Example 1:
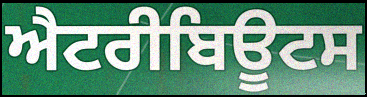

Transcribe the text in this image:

ਐਟਰੀਬਿਊਟਸ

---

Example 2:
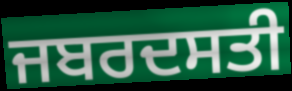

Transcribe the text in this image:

ਜਬਰਦਸਤੀ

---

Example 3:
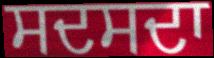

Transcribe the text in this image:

ਸਦਸਦਾ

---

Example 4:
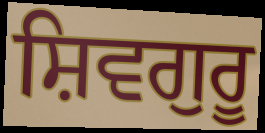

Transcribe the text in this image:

ਸ਼ਿਵਗੁਰੂ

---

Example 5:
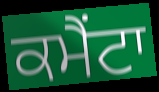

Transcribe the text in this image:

ਕਮੈਂਟਾ